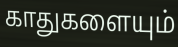
காதுகளையும்